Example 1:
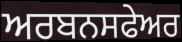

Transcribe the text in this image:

ਅਰਬਨਸਫੇਅਰ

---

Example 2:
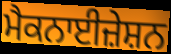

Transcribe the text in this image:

ਮੈਕਨਾਈਜ਼ੇਸ਼ਨ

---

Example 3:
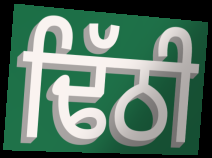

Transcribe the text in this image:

ਢਿੱਠੀ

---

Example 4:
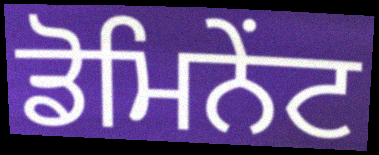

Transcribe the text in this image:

ਡੋਮਿਨੇਂਟ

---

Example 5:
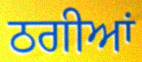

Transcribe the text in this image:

ਠਗੀਆਂ